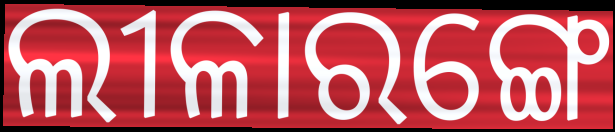
ଲୀଳାରଙ୍ଗେ